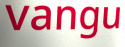
vangu